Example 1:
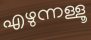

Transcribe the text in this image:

എഴുന്നള്ളൂ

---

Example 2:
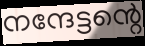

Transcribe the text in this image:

നന്ദേട്ടന്റെ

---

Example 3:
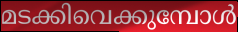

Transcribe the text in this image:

മടക്കിവെക്കുമ്പോൾ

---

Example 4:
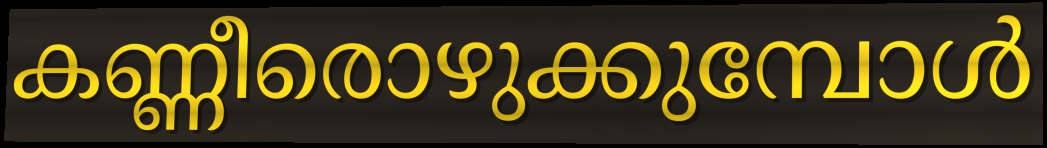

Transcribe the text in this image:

കണ്ണീരൊഴുക്കുമ്പോൾ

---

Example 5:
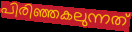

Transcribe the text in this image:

പിരിഞ്ഞകലുന്നത്